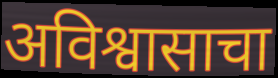
अविश्वासाचा